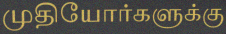
முதியோர்களுக்கு